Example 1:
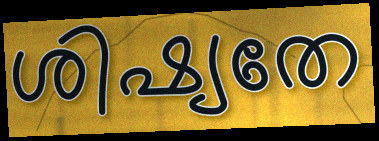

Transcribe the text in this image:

ശിഷ്യതേ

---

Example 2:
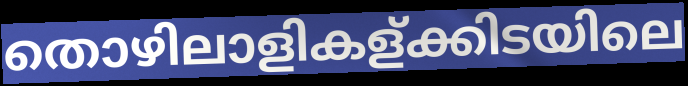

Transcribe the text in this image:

തൊഴിലാളികള്ക്കിടയിലെ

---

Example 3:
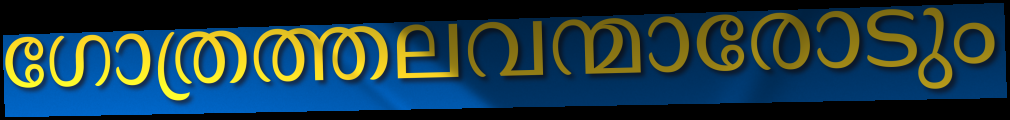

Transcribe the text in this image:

ഗോത്രത്തലവന്മാരോടും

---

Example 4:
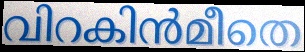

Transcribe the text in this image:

വിറകിൻമീതെ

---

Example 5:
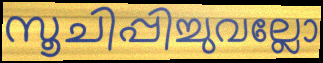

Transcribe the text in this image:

സൂചിപ്പിച്ചുവല്ലോ